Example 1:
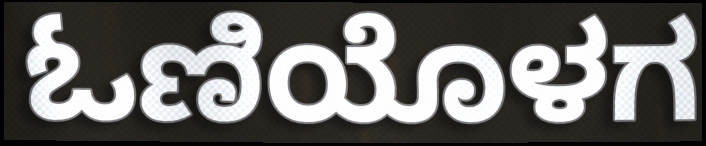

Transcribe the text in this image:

ಓಣಿಯೊಳಗ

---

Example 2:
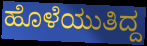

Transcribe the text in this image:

ಹೊಳೆಯುತಿದ್ದ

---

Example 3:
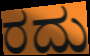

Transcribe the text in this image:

ರದು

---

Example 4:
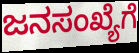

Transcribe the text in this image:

ಜನಸಂಖ್ಯೆಗೆ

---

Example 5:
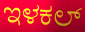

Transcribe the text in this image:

ಇಳಕಲ್